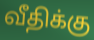
வீதிக்கு